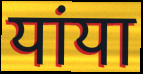
यांया